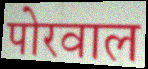
पोरवाल